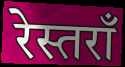
रेस्तराँ